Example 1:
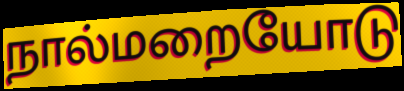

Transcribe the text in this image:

நால்மறையோடு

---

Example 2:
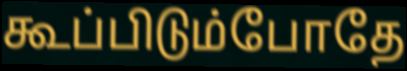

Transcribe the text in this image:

கூப்பிடும்போதே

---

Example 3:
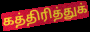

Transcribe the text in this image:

கத்திரித்துக்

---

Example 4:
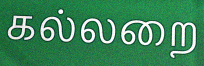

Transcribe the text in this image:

கல்லறை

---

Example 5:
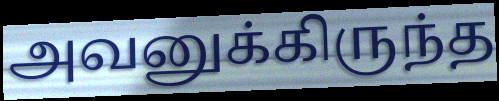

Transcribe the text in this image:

அவனுக்கிருந்த